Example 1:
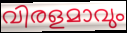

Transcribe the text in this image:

വിരളമാവും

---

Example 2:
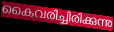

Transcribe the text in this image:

കൈവരിച്ചിരിക്കുന്നു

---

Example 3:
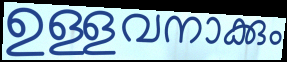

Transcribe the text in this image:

ഉള്ളവനാക്കും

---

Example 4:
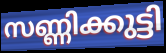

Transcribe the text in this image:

സണ്ണിക്കുട്ടി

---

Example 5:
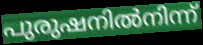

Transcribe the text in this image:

പുരുഷനിൽനിന്ന്